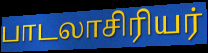
பாடலாசிரியர்